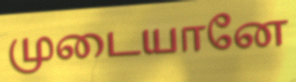
முடையானே